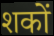
शकों